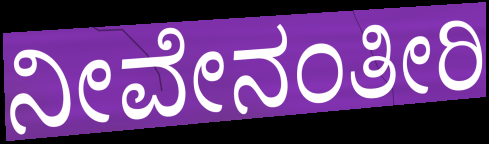
ನೀವೇನಂತೀರಿ